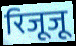
रिजूजू